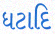
ધટાદિ